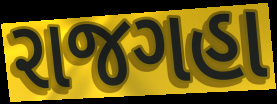
રાજગહા